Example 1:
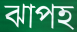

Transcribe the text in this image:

ঝাপহ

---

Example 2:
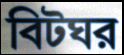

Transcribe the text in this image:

বিটঘর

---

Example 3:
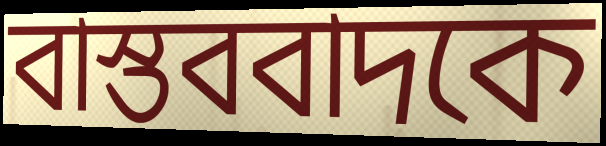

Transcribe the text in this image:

বাস্তববাদকে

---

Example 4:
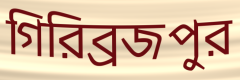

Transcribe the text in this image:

গিরিব্রজপুর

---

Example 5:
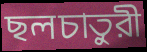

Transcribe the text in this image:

ছলচাতুরী